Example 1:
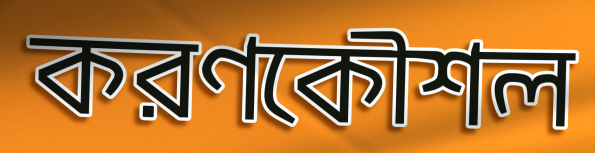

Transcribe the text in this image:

করণকৌশল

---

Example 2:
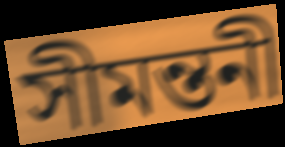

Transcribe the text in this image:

সীমন্তনী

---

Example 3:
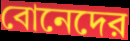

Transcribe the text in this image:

বোনেদের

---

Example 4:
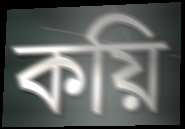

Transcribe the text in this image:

কয়ি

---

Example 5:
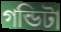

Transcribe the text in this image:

গন্ডিটা